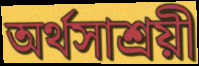
অর্থসাশ্রয়ী